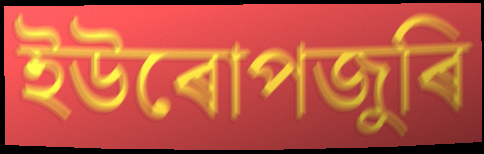
ইউৰোপজুৰি